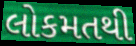
લોકમતથી